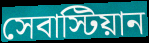
সেবাস্টিয়ান